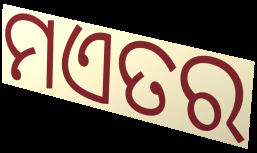
ମଏତର